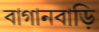
বাগানবাড়ি